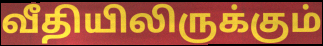
வீதியிலிருக்கும்